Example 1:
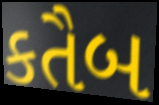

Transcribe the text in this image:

કતૈબ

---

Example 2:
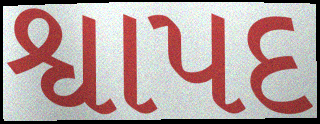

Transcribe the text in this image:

શ્વાપદ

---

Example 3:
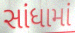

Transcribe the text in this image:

સાંધામાં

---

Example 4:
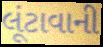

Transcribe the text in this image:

લૂંટાવાની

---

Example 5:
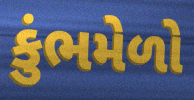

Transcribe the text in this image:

કુંભમેળો